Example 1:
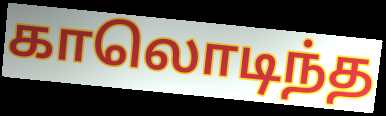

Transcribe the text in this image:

காலொடிந்த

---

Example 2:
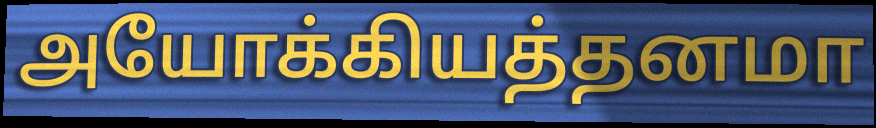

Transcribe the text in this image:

அயோக்கியத்தனமா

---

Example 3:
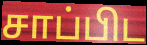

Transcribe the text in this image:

சாப்பிட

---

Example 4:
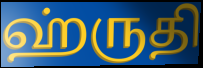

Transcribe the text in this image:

ஹ்ருதி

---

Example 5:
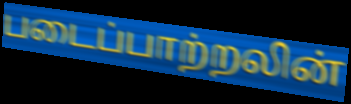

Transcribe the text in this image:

படைப்பாற்றலின்